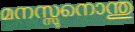
മനസ്സുനൊന്തു